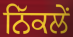
ਨਿੱਕਲੇਂ